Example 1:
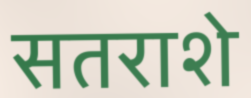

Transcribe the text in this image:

सतराशे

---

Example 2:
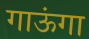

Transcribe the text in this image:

गाऊंगा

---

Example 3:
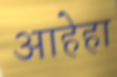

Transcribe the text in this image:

आहेहा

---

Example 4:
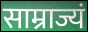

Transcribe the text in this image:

साम्राज्यं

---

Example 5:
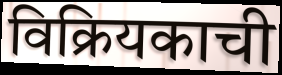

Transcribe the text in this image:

विक्रियकाची